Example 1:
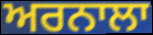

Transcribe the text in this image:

ਅਰਨਾਲਾ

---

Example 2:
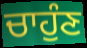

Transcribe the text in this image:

ਚਾਹੁੰਣ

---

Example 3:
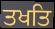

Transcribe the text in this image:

ਤਖਤਿ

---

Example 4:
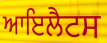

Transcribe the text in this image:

ਆਇਲੈਟਸ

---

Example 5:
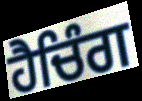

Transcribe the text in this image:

ਹੈਚਿੰਗ